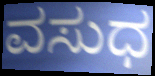
ವಸುಧ